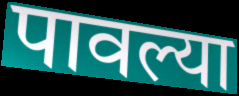
पावल्या